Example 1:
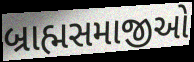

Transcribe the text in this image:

બ્રાહ્મસમાજીઓ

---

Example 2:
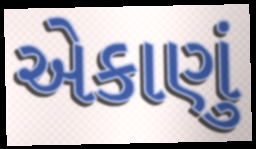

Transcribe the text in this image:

એકાણું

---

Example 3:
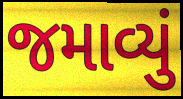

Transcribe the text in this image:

જમાવ્યું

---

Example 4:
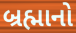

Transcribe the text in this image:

બ્રહ્માનો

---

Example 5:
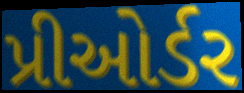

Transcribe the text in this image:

પ્રીઓર્ડર